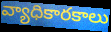
వ్యాధికారకాలు